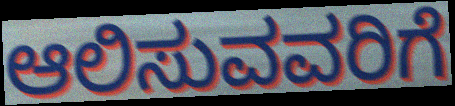
ಆಲಿಸುವವರಿಗೆ